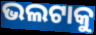
ଭଲଟାକୁ